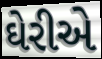
ઘેરીએ